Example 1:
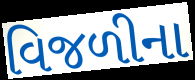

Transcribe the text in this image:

વિજળીના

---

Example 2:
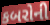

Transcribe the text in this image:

કબરોની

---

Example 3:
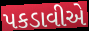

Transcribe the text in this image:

પકડાવીએ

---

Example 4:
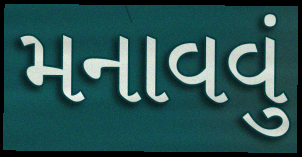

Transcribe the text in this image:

મનાવવું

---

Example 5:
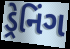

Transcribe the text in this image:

ડ્રેનિંગ